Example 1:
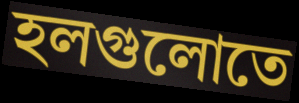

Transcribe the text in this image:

হলগুলোতে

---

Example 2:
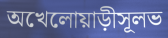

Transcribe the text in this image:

অখেলোয়াড়ীসূলভ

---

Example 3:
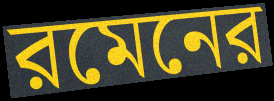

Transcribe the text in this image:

রমেনের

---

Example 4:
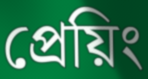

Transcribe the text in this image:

প্রেয়িং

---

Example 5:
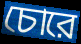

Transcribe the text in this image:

চোরে